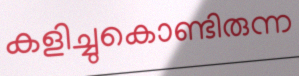
കളിച്ചുകൊണ്ടിരുന്ന